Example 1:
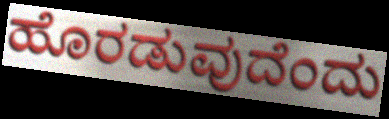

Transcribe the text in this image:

ಹೊರಡುವುದೆಂದು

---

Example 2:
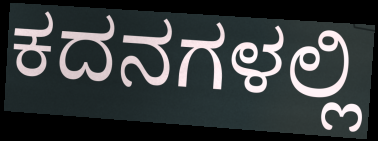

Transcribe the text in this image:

ಕದನಗಳಲ್ಲಿ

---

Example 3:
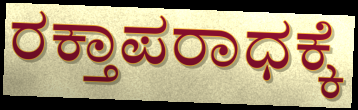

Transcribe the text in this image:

ರಕ್ತಾಪರಾಧಕ್ಕೆ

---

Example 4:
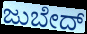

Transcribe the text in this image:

ಜುಬೇದ್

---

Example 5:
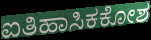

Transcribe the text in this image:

ಐತಿಹಾಸಿಕಕೋಶ